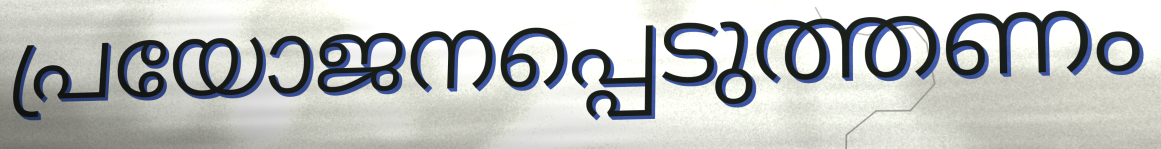
പ്രയോജനപ്പെടുത്തണം